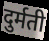
दुर्मती